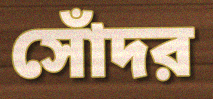
সোঁদর